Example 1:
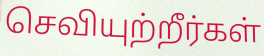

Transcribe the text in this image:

செவியுற்றீர்கள்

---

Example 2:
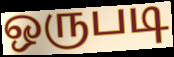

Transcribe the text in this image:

ஒருபடி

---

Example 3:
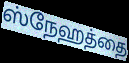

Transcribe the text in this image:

ஸ்நேஹத்தை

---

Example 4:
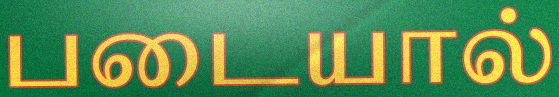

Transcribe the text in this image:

படையால்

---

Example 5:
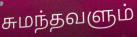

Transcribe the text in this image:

சுமந்தவளும்